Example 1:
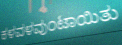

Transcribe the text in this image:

ಕಳವಳವುಂಟಾಯಿತು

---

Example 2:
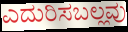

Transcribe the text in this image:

ಎದುರಿಸಬಲ್ಲವು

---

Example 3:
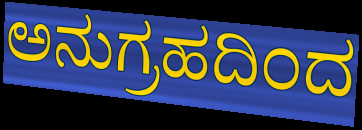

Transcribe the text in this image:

ಅನುಗ್ರಹದಿಂದ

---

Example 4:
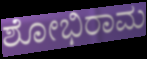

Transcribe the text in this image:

ಶೋಭಿರಾಮ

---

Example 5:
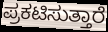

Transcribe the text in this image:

ಪ್ರಕಟಿಸುತ್ತಾರೆ